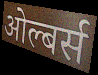
ओल्बर्स